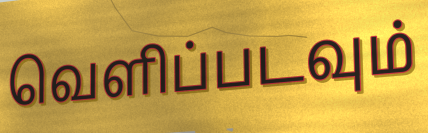
வெளிப்படவும்